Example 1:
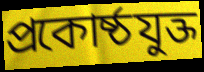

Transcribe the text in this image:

প্রকোষ্ঠযুক্ত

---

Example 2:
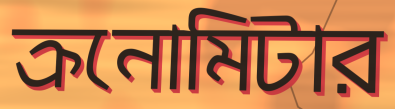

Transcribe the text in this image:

ক্রনোমিটার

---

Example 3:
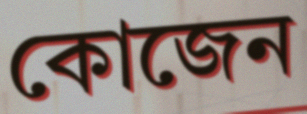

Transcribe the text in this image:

কোজেন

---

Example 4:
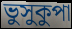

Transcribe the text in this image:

ভুসুকুপা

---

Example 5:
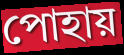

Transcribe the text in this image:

পোহায়